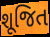
શૂજિત